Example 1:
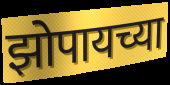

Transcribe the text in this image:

झोपायच्या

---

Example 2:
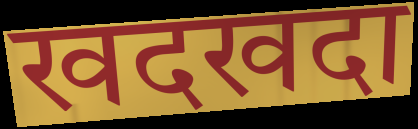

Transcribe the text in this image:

खदखदा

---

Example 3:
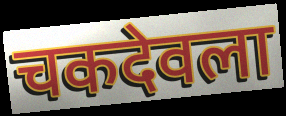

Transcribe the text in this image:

चकदेवला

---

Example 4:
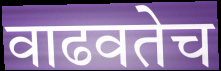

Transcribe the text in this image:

वाढवतेच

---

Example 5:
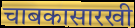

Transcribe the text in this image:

चाबकासारखी